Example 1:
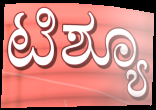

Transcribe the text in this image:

ಟಿಶ್ಯೂ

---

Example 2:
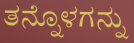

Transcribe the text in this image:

ತನ್ನೊಳಗನ್ನು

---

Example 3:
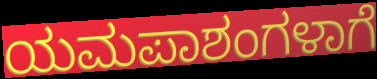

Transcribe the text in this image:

ಯಮಪಾಶಂಗಳಾಗೆ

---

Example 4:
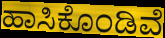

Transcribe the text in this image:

ಹಾಸಿಕೊಂಡಿವೆ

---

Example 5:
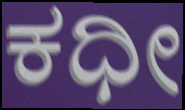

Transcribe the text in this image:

ಕಧೀ